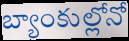
బ్యాంకుల్లోనో